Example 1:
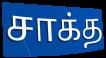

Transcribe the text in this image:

சாக்த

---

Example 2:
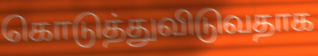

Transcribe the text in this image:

கொடுத்துவிடுவதாக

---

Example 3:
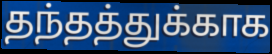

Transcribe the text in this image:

தந்தத்துக்காக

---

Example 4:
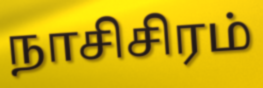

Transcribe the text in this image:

நாசிசிரம்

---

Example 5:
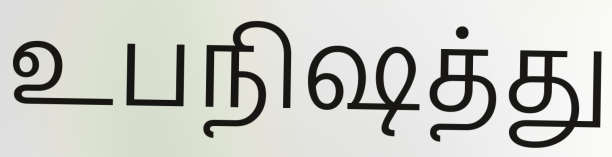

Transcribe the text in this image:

உபநிஷத்து